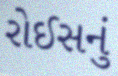
રોઈસનું